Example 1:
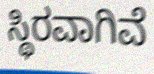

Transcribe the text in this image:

ಸ್ಥಿರವಾಗಿವೆ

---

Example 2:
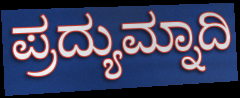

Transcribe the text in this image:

ಪ್ರದ್ಯುಮ್ನಾದಿ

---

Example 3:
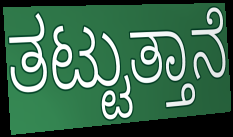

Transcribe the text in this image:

ತಟ್ಟುತ್ತಾನೆ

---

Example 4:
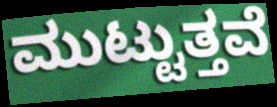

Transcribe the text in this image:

ಮುಟ್ಟುತ್ತವೆ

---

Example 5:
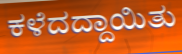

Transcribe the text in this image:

ಕಳೆದದ್ದಾಯಿತು